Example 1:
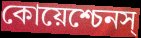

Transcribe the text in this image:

কোয়েশ্চেনস্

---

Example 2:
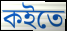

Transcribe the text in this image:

কইতে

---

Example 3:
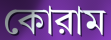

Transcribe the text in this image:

কোরাম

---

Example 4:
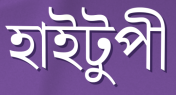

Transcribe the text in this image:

হাইটুপী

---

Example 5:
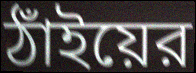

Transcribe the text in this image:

ঠাঁইয়ের